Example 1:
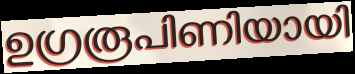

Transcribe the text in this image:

ഉഗ്രരൂപിണിയായി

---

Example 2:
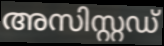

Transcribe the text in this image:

അസിസ്റ്റഡ്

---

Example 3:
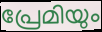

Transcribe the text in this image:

പ്രേമിയും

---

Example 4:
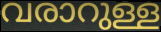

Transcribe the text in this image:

വരാറുള്ള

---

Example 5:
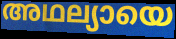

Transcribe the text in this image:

അഥല്യായെ